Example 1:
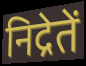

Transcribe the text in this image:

निद्रेतें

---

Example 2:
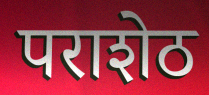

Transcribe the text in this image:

पराशेठ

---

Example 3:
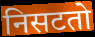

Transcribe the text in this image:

निसटतो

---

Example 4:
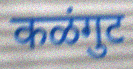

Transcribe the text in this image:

कळंगुट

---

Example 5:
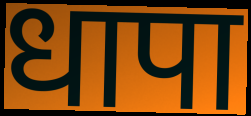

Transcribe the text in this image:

धापा